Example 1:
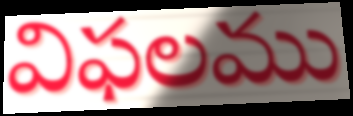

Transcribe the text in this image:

విఫలము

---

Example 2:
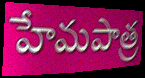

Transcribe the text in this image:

హేమపాత్ర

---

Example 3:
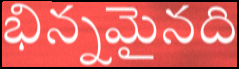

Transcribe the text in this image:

భిన్నమైనది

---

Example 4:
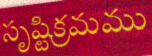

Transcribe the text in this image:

సృష్టిక్రమము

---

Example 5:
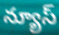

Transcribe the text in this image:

న్యూస్